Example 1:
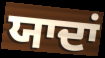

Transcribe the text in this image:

ਯਾਦਾਂ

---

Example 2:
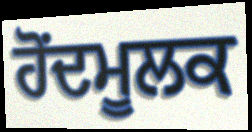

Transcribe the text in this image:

ਹੋਂਦਮੂਲਕ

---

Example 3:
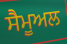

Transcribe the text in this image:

ਸੈਮੂਅਲ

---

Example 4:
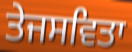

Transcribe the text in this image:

ਤੇਜਸਵਿਤਾ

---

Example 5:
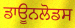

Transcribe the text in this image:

ਡਾਊਨਲੋਡਸ